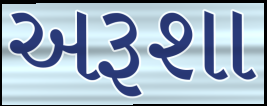
અરૂશા